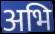
अभि